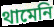
থামেনি